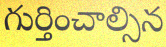
గుర్తించాల్సిన